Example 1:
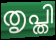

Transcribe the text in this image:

തൃപ്തി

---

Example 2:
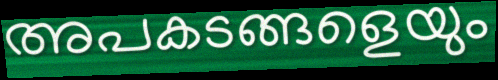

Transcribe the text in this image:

അപകടങ്ങളെയും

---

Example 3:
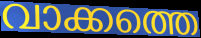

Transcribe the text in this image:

വാക്കത്തെ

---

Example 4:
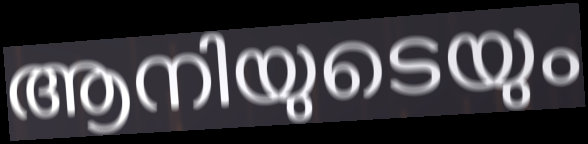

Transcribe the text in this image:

ആനിയുടെയും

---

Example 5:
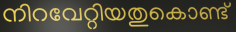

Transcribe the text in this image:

നിറവേറ്റിയതുകൊണ്ട്